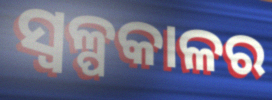
ସ୍ୱଳ୍ପକାଳର